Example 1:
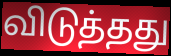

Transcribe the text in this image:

விடுத்தது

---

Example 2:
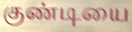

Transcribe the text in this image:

குண்டியை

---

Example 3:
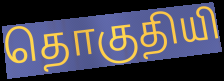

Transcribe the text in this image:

தொகுதியி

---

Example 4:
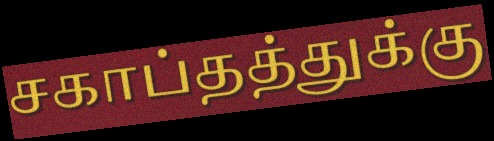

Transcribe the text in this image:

சகாப்தத்துக்கு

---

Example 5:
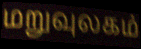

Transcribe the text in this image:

மறுவுலகம்